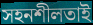
সহনশীলতাই